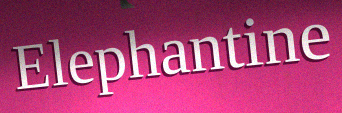
Elephantine